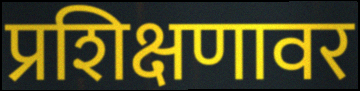
प्रशिक्षणावर